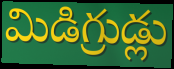
మిడిగ్రుడ్లు